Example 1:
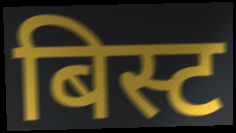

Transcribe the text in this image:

बिस्ट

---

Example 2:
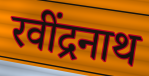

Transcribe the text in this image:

रवींद्रनाथ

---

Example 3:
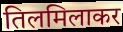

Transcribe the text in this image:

तिलमिलाकर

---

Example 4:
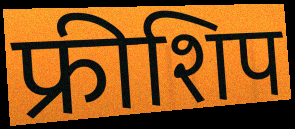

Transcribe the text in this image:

फ्रीशिप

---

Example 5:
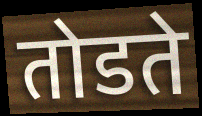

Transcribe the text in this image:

तोडते